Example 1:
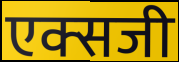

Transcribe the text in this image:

एक्सजी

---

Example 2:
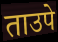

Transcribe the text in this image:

ताउपे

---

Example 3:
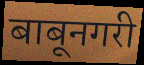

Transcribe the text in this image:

बाबूनगरी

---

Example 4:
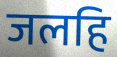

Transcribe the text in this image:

जलहि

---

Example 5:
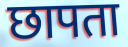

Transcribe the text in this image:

छापता